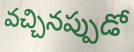
వచ్చినప్పుడో